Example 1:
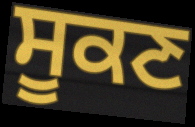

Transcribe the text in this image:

ਸੂਕਣ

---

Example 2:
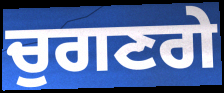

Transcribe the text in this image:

ਚੁਗਣਗੇ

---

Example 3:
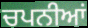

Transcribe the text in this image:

ਚਪਨੀਆਂ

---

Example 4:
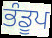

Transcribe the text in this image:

ਭੰਡੂਪ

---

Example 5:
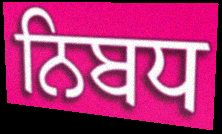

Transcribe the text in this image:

ਨਿਬਧ